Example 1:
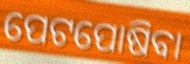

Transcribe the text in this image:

ପେଟପୋଷିବା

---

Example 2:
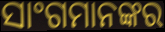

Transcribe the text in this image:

ସାଂଗମାନଙ୍କର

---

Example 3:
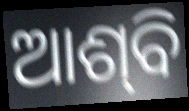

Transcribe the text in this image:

ଆଶ୍‍ବି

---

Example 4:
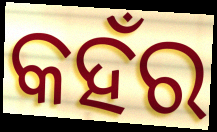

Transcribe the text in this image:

କହଁର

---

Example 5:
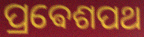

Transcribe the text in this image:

ପ୍ରଵେଶପଥ